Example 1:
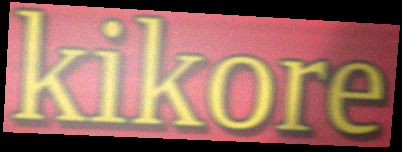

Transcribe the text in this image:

kikore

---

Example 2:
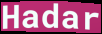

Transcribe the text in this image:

Hadar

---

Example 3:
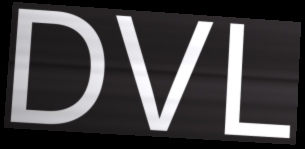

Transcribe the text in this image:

DVL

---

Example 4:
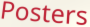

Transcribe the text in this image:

Posters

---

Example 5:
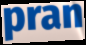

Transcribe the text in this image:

pran